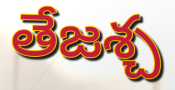
తేజశ్చ